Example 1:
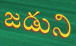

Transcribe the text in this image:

జడుని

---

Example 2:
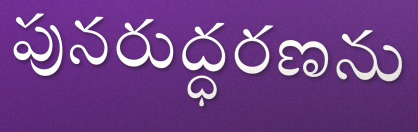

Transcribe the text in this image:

పునరుద్ధరణను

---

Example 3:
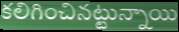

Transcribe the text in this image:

కలిగించినట్టున్నాయి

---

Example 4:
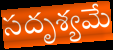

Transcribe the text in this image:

సదృశ్యమే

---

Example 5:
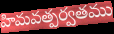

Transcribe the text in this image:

హిమవత్పర్వతము